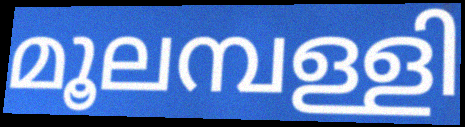
മൂലമ്പള്ളി